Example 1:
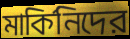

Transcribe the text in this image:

মার্কিনিদের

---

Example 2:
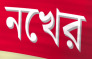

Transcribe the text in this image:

নখের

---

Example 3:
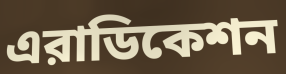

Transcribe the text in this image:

এরাডিকেশন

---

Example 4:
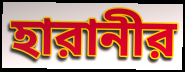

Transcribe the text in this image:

হারানীর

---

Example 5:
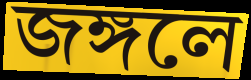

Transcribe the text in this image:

জঙ্গলে